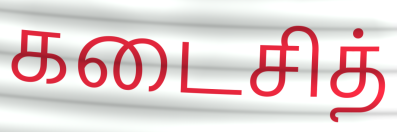
கடைசித்